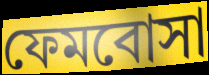
ফেমবোসা